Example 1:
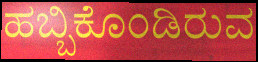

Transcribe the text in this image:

ಹಬ್ಬಿಕೊಂಡಿರುವ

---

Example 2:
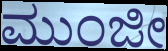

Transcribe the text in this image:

ಮುಂಜೀ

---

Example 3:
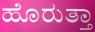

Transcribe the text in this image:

ಹೊರುತ್ತಾ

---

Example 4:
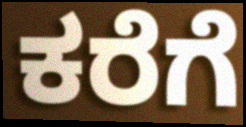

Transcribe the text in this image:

ಕರೆಗೆ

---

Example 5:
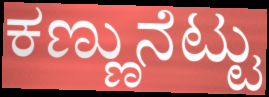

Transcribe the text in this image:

ಕಣ್ಣುನೆಟ್ಟು